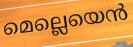
മെല്ലെയെൻ